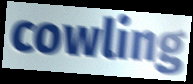
cowling